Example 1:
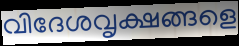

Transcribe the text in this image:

വിദേശവൃക്ഷങ്ങളെ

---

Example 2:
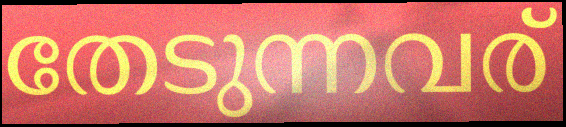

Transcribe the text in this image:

തേടുന്നവര്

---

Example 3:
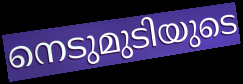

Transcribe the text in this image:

നെടുമുടിയുടെ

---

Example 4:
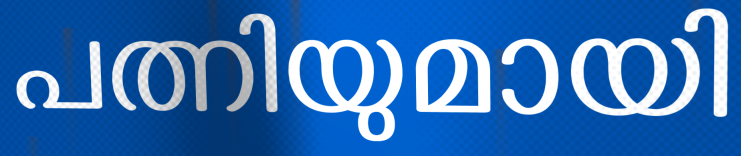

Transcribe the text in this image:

പത്നിയുമായി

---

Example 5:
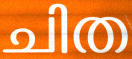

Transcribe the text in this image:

ചിത